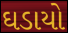
ઘડાયો